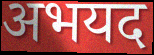
अभयद